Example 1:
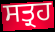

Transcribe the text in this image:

ਸਤ੍ਰਹ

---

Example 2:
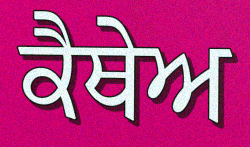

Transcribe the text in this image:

ਕੈਥੇਅ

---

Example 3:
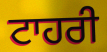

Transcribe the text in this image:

ਟਾਹਰੀ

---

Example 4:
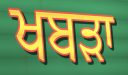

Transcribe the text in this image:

ਖਬੜਾ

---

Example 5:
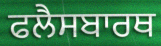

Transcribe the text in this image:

ਫਲੈਸਬਾਰਥ